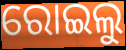
ରୋଇଲୁ